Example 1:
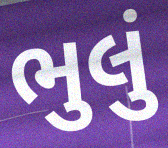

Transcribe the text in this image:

ભુલું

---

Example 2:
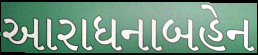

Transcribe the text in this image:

આરાધનાબહેન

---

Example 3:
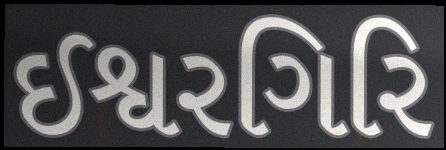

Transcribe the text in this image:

ઈશ્વરગિરિ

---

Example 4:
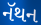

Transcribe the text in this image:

નૅથન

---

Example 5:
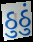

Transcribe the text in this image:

ઠુઠું